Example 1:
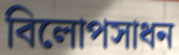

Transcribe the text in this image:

বিলোপসাধন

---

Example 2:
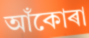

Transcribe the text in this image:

আঁকোৰা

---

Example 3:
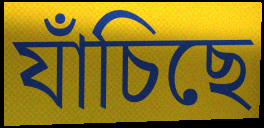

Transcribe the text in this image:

যাঁচিছে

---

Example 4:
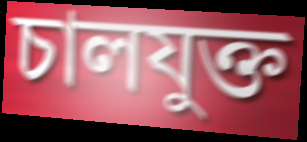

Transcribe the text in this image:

চালযুক্ত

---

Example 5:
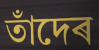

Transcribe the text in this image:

তাঁদেৰ